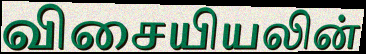
விசையியலின்